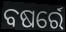
ବଷର୍ରେ